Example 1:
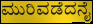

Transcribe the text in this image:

ಮುರಿವಡೆದನೈ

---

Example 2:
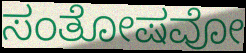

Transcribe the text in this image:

ಸಂತೋಷವೋ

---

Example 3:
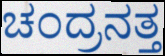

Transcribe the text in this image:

ಚಂದ್ರನತ್ತ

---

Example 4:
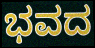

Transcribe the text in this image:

ಭವದ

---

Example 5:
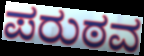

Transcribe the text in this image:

ಪರುಠವ